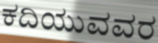
ಕದಿಯುವವರ